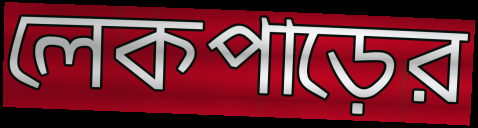
লেকপাড়ের